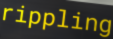
rippling